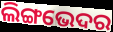
ଲିଙ୍ଗଭେଦର